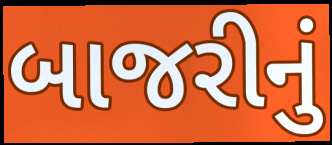
બાજરીનું